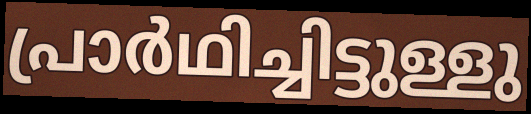
പ്രാർഥിച്ചിട്ടുള്ളു